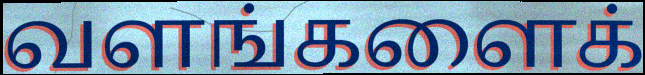
வளங்களைக்